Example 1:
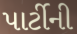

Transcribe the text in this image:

પાર્ટીની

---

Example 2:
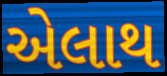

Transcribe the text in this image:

એલાથ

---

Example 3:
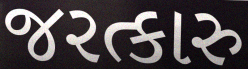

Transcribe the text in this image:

જરત્કારુ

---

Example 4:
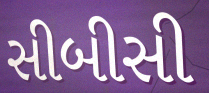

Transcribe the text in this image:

સીબીસી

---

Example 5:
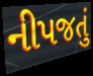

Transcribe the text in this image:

નીપજતું